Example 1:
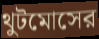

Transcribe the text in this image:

থুটমোসের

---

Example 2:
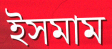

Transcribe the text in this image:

ইসমাম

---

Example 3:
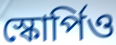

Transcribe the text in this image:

স্কোর্পিও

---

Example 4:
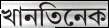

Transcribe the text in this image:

খানতিনেক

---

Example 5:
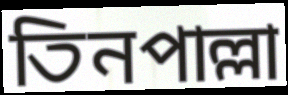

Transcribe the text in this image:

তিনপাল্লা